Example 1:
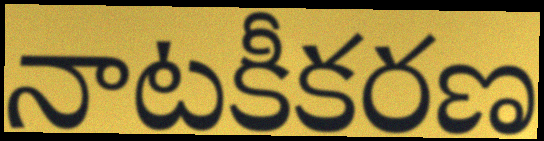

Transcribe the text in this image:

నాటకీకరణ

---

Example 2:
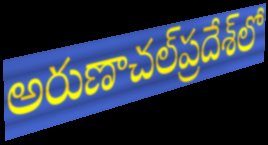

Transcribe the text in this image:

అరుణాచల్‌ప్రదేశ్‌లో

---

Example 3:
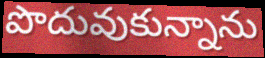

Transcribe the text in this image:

పొదువుకున్నాను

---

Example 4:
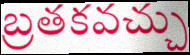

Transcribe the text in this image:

బ్రతకవచ్చు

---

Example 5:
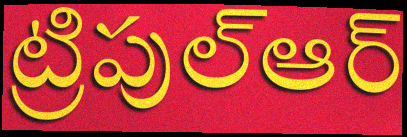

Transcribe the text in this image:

ట్రిపుల్ఆర్